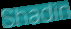
Shadin